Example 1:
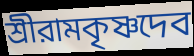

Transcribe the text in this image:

শ্রীরামকৃষ্ণদেব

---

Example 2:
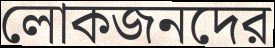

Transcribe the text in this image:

লোকজনদের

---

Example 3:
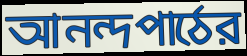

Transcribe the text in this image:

আনন্দপাঠের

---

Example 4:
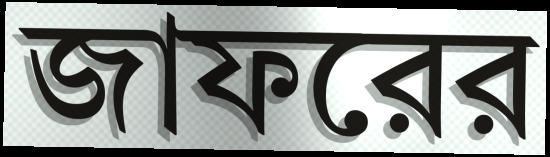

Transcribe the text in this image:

জাফরের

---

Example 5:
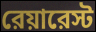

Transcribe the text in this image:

রেয়ারেস্ট